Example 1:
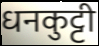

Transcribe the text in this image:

धनकुट्टी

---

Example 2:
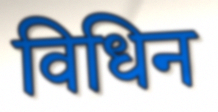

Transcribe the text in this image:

विधिन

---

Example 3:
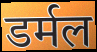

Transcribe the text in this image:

डर्मल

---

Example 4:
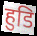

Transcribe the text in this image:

हुडि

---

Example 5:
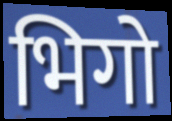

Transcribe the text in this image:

भिगो